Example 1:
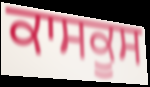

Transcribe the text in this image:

ਕਾਸਕੂਸ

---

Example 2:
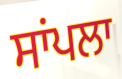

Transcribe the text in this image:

ਸਾਂਪਲਾ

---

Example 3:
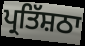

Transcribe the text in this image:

ਪ੍ਰਤਿੱਸ਼ਠਾ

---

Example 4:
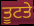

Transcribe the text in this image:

ਤੂਟਤੇ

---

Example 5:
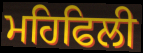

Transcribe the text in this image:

ਮਹਿਫਿਲੀ